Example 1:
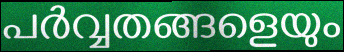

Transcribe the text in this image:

പർവ്വതങ്ങളെയും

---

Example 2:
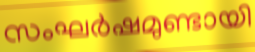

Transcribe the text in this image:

സംഘർഷമുണ്ടായി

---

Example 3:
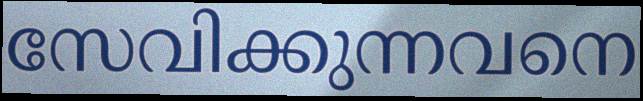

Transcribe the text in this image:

സേവിക്കുന്നവനെ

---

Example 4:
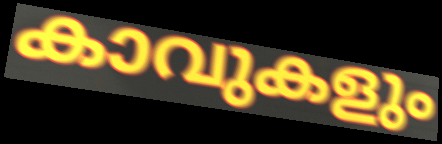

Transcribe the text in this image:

കാവുകളും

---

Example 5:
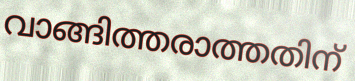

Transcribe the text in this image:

വാങ്ങിത്തരാത്തതിന്